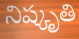
నిష్కృతి